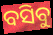
ବସିବୁ